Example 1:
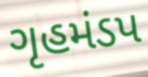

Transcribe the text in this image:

ગૃહમંડપ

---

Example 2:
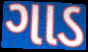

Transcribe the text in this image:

ગાડ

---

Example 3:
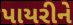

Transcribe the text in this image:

પાયરીને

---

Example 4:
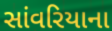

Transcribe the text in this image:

સાંવરિયાના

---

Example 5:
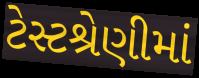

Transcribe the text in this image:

ટેસ્ટશ્રેણીમાં